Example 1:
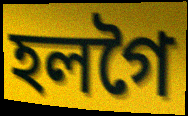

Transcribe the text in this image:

হলগৈ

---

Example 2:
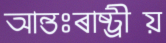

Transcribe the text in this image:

আন্তঃৰাষ্ট্ৰীয়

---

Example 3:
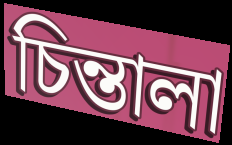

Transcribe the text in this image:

চিন্তালা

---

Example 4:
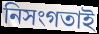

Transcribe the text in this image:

নিসংগতাই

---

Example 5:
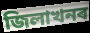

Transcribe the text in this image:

জিলাখনৰ